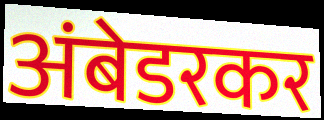
अंबेडरकर